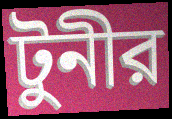
টুনীর